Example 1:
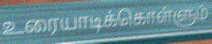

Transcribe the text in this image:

உரையாடிக்கொள்ளும்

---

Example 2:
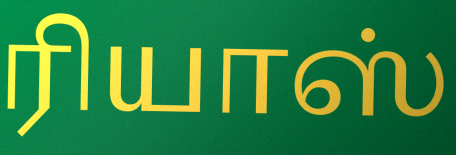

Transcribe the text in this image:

ரியாஸ்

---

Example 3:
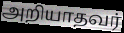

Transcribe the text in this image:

அறியாதவர்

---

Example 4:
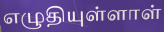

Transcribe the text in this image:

எழுதியுள்ளாள்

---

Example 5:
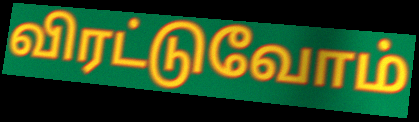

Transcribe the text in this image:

விரட்டுவோம்